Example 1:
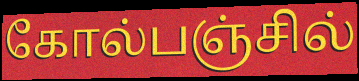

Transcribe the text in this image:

கோல்பஞ்சில்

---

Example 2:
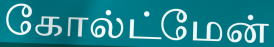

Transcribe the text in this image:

கோல்ட்மேன்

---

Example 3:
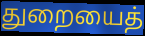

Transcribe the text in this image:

துறையைத்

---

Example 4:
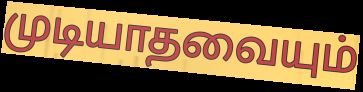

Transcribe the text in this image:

முடியாதவையும்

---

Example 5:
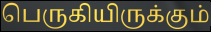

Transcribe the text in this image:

பெருகியிருக்கும்